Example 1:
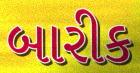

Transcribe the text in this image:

બારીક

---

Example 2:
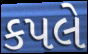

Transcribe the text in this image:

કપલે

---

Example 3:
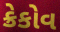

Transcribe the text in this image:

ક્રેકોવ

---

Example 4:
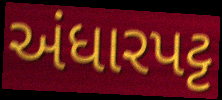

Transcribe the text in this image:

અંધારપટ્ટ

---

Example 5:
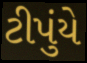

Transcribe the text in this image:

ટીપુંયે